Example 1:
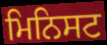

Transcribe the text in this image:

ਮਿਨਿਸਟ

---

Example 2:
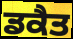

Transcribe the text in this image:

ਡਕੈਤ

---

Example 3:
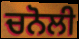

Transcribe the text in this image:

ਚਨੋਲੀ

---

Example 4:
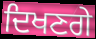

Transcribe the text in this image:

ਦਿਖਣਗੇ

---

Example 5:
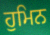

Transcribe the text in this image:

ਹੁਮਿਨ